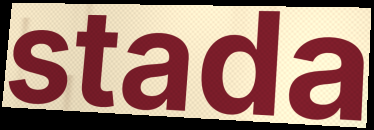
stada